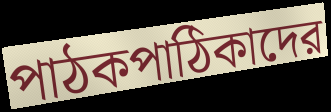
পাঠকপাঠিকাদের